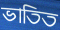
ভাতিত